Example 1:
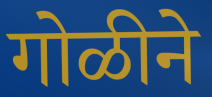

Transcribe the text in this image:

गोळीने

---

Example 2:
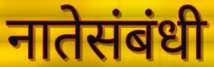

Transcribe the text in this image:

नातेसंबंधी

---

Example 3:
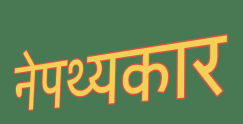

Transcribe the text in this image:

नेपथ्यकार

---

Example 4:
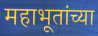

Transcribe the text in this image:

महाभूतांच्या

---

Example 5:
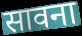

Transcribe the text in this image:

सावना